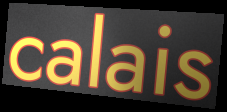
calais